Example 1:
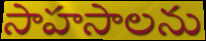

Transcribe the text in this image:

సాహసాలను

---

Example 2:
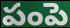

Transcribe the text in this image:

పంపె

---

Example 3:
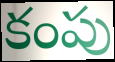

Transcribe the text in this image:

కంపు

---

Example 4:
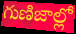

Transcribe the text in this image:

గుణిజాల్లో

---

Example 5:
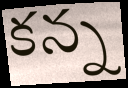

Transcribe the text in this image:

కన్న